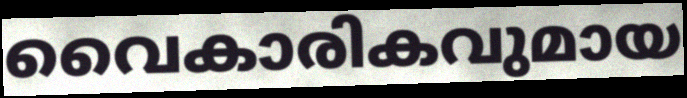
വൈകാരികവുമായ